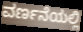
ವರ್ಣನೆಯಲ್ಲಿ